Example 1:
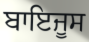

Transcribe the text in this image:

ਬਾਇਜੂਸ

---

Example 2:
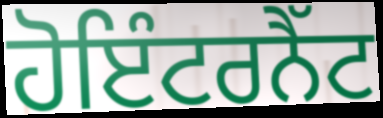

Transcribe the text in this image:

ਹੋਇੰਟਰਨੈੱਟ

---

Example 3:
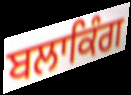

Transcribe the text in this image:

ਬਲਾਕਿੰਗ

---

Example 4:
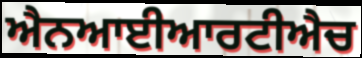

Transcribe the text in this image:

ਐਨਆਈਆਰਟੀਐਚ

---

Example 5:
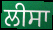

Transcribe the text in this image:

ਲੀਸਾ